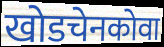
खोडचेनकोवा